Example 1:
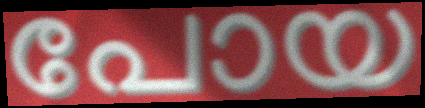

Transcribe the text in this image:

പോയ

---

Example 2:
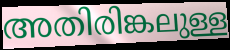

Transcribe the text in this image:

അതിരിങ്കലുള്ള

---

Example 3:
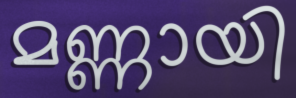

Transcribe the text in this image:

മണ്ണായി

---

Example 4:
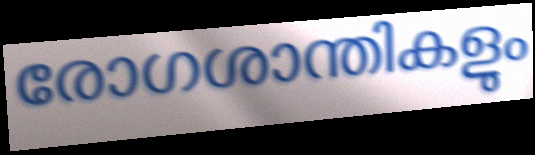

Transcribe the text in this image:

രോഗശാന്തികളും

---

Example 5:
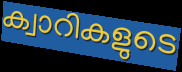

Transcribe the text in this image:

ക്വാറികളുടെ